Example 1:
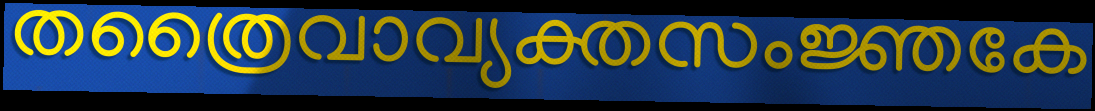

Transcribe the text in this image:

തത്രൈവാവ്യക്തസംജ്ഞകേ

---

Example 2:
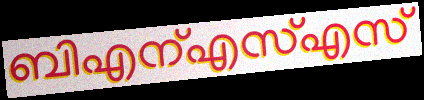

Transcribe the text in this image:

ബിഎന്എസ്എസ്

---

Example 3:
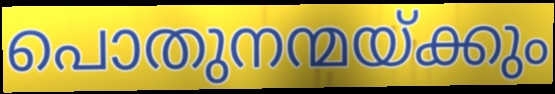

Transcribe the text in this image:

പൊതുനന്മയ്ക്കും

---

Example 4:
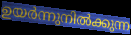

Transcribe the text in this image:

ഉയർന്നുനിൽക്കുന്ന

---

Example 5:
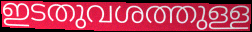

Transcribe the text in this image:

ഇടതുവശത്തുള്ള